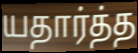
யதார்த்த